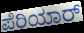
ಪೆರಿಯಾರ್